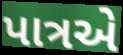
પાત્રએ